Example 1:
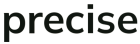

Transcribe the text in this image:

precise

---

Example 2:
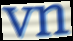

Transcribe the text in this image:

vn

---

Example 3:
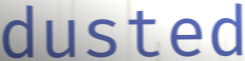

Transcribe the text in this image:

dusted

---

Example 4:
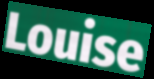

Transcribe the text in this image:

Louise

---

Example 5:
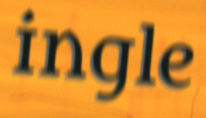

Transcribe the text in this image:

ingle